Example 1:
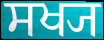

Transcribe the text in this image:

ਸਖ੍ਯ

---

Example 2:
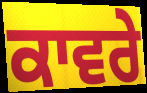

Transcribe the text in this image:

ਕਾਵਰੇ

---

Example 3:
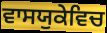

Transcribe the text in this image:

ਵਾਸਯੁਕੇਵਿਚ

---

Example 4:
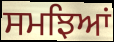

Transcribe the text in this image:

ਸਮਝਿਆਂ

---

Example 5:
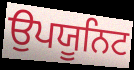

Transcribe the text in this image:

ਉਪਯੂਨਿਟ